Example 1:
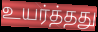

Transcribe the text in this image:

உயர்த்தது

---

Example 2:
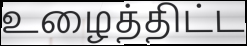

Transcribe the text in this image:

உழைத்திட்ட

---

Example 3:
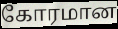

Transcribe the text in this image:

கோரமான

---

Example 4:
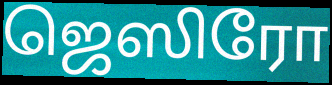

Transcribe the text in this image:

ஜெஸிரோ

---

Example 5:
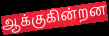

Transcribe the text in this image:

ஆக்குகின்றன